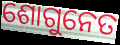
ଶୋଗୁନେତ